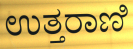
ಉತ್ತರಾಣಿ